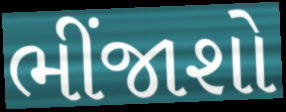
ભીંજાશો